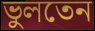
ভুলতেন